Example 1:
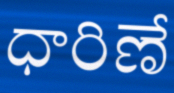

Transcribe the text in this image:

ధారిణే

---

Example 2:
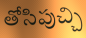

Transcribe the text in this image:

తోసిపుచ్చి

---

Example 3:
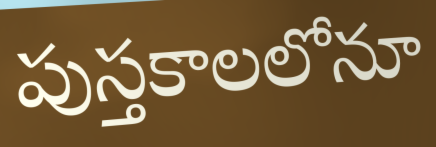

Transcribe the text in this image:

పుస్తకాలలోనూ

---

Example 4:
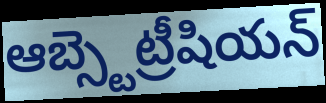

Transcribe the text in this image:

ఆబ్స్టెట్రీషియన్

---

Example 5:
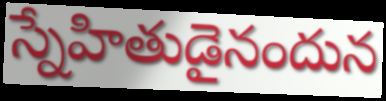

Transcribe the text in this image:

స్నేహితుడైనందున